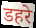
डहरे